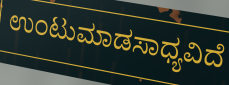
ಉಂಟುಮಾಡಸಾಧ್ಯವಿದೆ